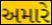
અમારે